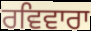
ਰਵਿਵਾਰਾ